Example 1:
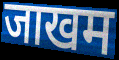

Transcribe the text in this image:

जाखम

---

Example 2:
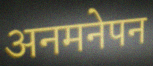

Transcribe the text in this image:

अनमनेपन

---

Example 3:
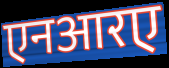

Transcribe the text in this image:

एनआरए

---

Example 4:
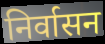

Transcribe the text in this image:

निर्वासन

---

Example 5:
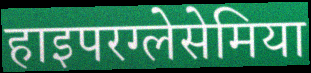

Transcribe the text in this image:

हाइपरग्लेसेमिया